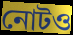
নোটও